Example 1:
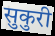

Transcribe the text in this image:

सुकुरी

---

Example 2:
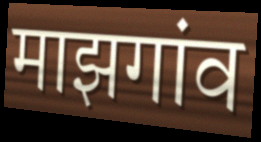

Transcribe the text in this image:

माझगांव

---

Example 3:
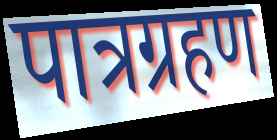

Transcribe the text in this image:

पात्रग्रहण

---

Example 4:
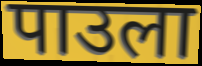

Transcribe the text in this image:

पाउला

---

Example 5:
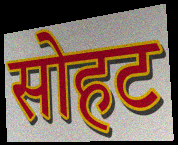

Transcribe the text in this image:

सोहट